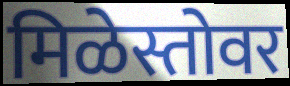
मिळेस्तोवर